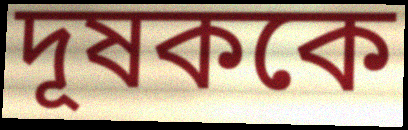
দূষককে